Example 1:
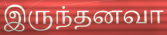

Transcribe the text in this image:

இருந்தனவா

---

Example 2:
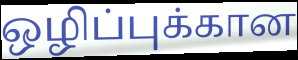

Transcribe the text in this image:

ஒழிப்புக்கான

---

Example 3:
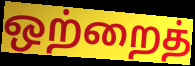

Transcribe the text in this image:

ஒற்றைத்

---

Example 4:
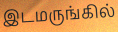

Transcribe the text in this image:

இடமருங்கில்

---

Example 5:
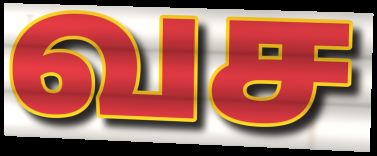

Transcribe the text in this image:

வச